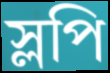
স্লপি